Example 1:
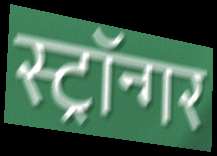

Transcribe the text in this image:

स्ट्रॉन्गर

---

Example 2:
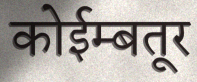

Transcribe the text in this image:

कोईम्बतूर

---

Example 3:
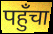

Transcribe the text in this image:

पहुँचा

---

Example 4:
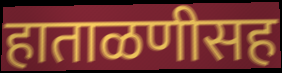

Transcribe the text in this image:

हाताळणीसह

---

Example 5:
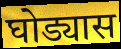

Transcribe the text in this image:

घोड्यास